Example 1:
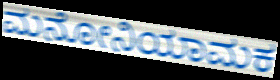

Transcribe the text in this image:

ಮನೋನಿಯಾಮಕ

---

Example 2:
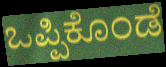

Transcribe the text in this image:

ಒಪ್ಪಿಕೊಂಡೆ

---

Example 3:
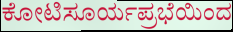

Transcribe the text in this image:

ಕೋಟಿಸೂರ್ಯಪ್ರಭೆಯಿಂದ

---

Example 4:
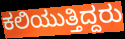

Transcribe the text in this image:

ಕಲಿಯುತ್ತಿದ್ದರು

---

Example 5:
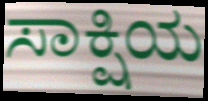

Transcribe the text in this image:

ಸಾಕ್ಷಿಯ